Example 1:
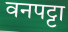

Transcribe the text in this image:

वनपट्टा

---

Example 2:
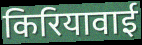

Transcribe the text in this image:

किरियावाई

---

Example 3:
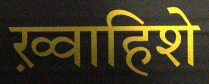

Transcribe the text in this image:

ख़्वाहिशे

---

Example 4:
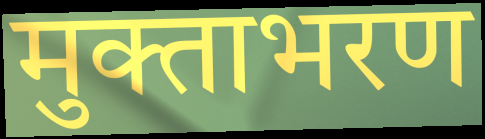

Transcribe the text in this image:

मुक्ताभरण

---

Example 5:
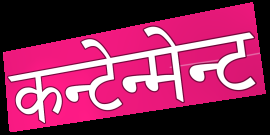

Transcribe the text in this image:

कन्टेन्मेन्ट